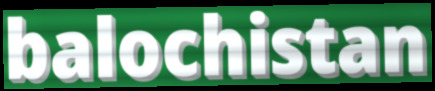
balochistan